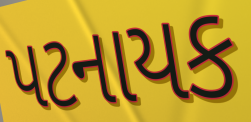
પટનાયક